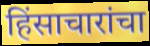
हिंसाचारांचा